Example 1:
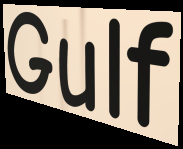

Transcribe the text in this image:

Gulf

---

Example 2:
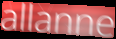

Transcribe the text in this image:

allanne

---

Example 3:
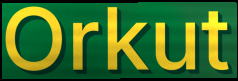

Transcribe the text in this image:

Orkut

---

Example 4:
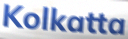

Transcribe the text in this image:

Kolkatta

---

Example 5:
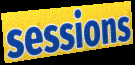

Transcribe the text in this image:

sessions